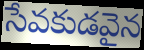
సేవకుడవైన